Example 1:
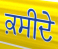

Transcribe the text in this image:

ਕ਼ਸੀਦੇ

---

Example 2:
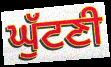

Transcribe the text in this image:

ਘੁੱਟਣੀ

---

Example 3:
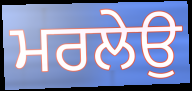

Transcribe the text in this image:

ਮਰਲੇਉ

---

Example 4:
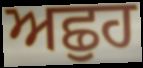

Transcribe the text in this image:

ਅਛੁਹ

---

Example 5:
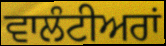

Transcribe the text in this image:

ਵਾਲੰਟੀਅਰਾਂ